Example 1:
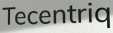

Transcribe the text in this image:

Tecentriq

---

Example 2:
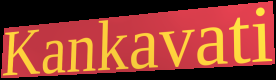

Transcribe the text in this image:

Kankavati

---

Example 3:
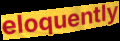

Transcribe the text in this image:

eloquently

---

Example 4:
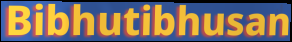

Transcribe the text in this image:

Bibhutibhusan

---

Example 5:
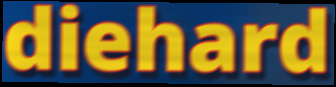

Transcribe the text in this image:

diehard